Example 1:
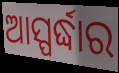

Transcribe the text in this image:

ଆସ୍ପର୍ଦ୍ଧାର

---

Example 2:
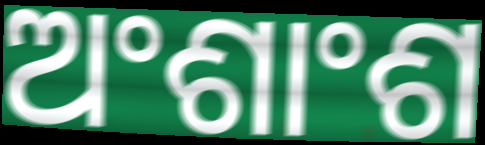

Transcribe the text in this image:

ଅଂଶାଂଶ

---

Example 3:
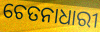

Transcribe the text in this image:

ଚେତନାଧାରୀ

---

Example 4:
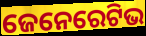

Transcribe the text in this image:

ଜେନେରେଟିଭ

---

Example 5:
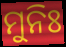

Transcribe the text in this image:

ମୁନିଃ